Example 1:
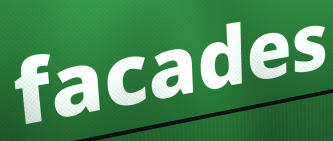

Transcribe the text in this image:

facades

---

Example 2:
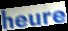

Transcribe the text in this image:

heure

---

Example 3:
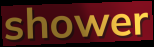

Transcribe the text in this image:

shower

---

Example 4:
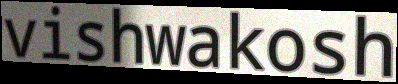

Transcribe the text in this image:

vishwakosh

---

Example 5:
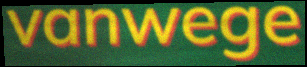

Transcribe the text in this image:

vanwege